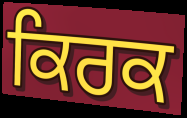
ਕਿਰਕ